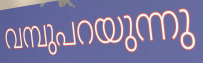
വമ്പുപറയുന്നു